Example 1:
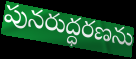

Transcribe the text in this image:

పునరుద్ధరణను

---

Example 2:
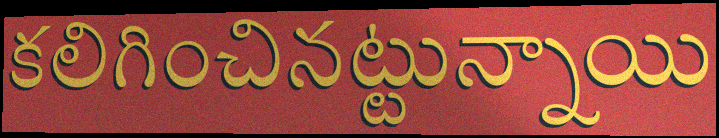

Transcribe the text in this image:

కలిగించినట్టున్నాయి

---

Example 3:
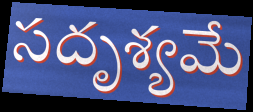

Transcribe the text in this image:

సదృశ్యమే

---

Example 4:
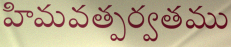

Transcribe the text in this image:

హిమవత్పర్వతము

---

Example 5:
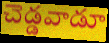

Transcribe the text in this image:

చెడ్డవాడూ